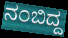
ನಂಬಿದ್ದ